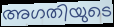
അഗതിയുടെ